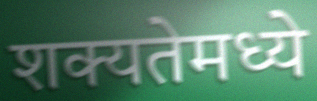
शक्यतेमध्ये